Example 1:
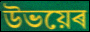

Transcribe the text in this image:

উভয়েৰ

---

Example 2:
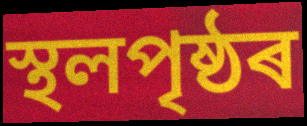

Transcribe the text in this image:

স্থলপৃষ্ঠৰ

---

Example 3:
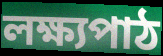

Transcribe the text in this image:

লক্ষ্যপাঠ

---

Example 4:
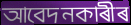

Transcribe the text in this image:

আবেদনকাৰীৰ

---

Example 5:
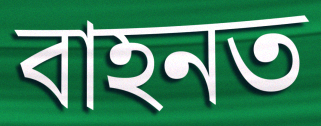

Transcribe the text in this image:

বাহনত